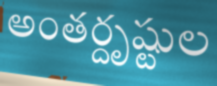
అంతర్దృష్టుల